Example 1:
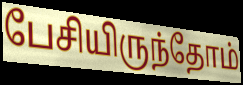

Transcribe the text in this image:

பேசியிருந்தோம்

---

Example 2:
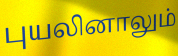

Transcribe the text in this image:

புயலினாலும்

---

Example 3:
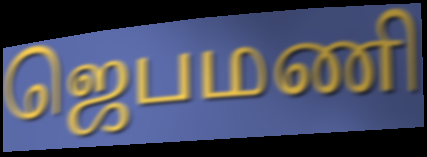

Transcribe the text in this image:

ஜெபமணி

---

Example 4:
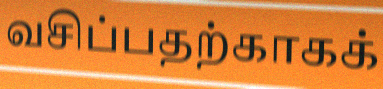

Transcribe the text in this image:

வசிப்பதற்காகக்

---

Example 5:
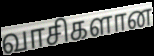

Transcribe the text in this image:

வாசிகளான